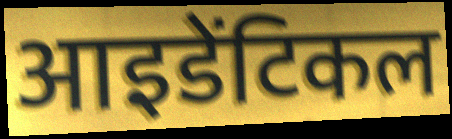
आइडेंटिकल